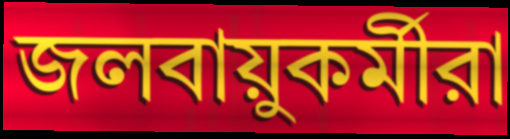
জলবায়ুকর্মীরা